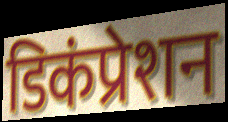
डिकंप्रेशन